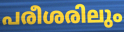
പരീശരിലും